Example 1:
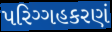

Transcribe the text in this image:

પરિગ્ગહકરણં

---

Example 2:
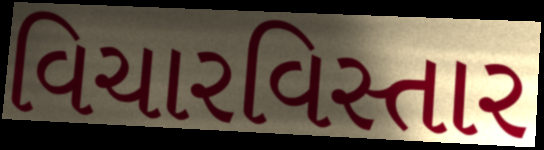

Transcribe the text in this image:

વિચારવિસ્તાર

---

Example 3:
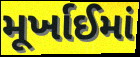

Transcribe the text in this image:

મૂર્ખાઈમાં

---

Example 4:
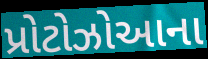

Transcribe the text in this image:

પ્રોટોઝોઆના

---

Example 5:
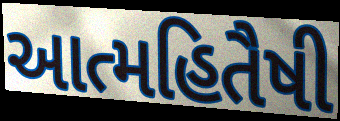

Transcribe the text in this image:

આત્મહિતૈષી